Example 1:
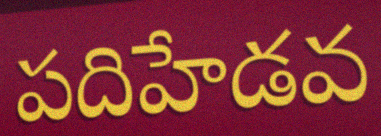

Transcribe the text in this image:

పదిహేడవ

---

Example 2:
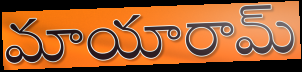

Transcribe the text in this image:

మాయారామ్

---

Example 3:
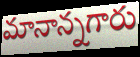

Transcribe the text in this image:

మానాన్నగారు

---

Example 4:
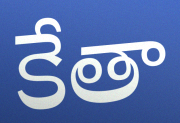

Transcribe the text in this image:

కేతా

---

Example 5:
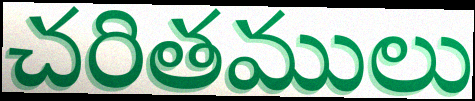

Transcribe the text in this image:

చరితములు